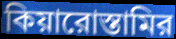
কিয়ারোস্তামির